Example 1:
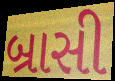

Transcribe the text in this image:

બ્રાસી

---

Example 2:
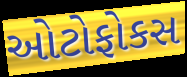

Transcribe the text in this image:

ઓટોફોકસ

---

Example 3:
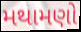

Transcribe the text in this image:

મથામણો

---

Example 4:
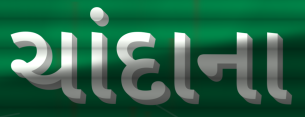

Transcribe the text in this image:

ચાંદાના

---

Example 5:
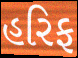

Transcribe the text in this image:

હરિફ